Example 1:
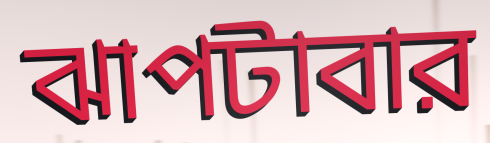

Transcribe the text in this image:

ঝাপটাবার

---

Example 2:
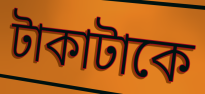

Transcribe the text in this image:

টাকাটাকে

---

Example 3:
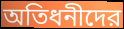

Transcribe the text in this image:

অতিধনীদের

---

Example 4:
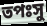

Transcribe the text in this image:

তপঃসু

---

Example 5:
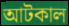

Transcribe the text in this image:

আটকাল